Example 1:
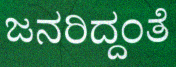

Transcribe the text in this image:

ಜನರಿದ್ದಂತೆ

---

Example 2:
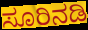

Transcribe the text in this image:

ಸೂರಿನಡಿ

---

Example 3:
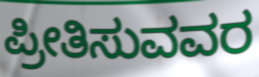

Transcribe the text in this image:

ಪ್ರೀತಿಸುವವರ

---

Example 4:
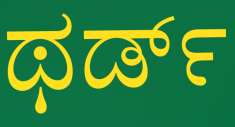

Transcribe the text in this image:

ಥರ್ಡ್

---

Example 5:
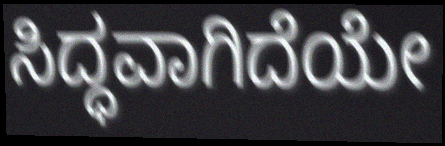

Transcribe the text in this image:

ಸಿದ್ಧವಾಗಿದೆಯೇ